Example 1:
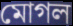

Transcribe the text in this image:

মোগল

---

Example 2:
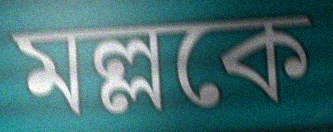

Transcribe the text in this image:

মল্লকে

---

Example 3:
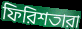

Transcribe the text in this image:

ফিরিশতারা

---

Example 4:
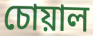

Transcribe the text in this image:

চোয়াল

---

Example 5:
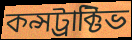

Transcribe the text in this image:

কন্সট্রাক্টিভ